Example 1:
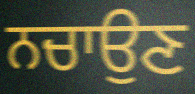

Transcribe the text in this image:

ਨਚਾਉਣ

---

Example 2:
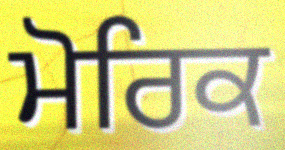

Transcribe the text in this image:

ਮੋਰਿਕ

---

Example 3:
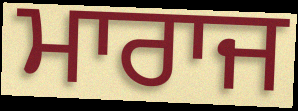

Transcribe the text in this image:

ਮਾਰਾਜ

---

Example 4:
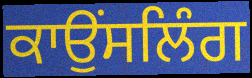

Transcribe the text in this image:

ਕਾਉੰਸਲਿੰਗ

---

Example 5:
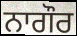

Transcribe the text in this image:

ਨਾਗੌਰ